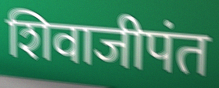
शिवाजीपंत